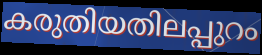
കരുതിയതിലപ്പുറം